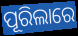
ପୂରିଲାରେ